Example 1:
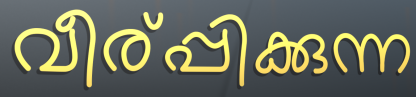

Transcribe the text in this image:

വീര്പ്പിക്കുന്ന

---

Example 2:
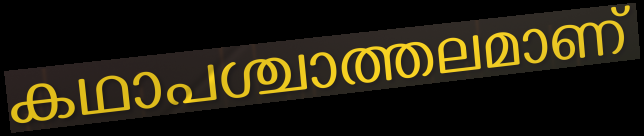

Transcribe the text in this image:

കഥാപശ്ചാത്തലമാണ്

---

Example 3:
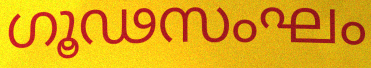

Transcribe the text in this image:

ഗൂഢസംഘം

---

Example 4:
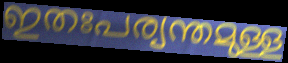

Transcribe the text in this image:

ഇതഃപര്യന്തമുള്ള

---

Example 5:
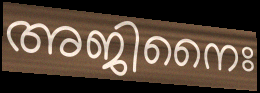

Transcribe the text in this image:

അജിനൈഃ